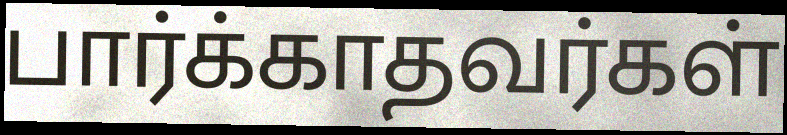
பார்க்காதவர்கள்